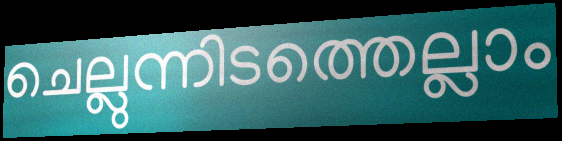
ചെല്ലുന്നിടത്തെല്ലാം